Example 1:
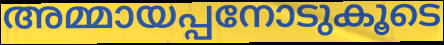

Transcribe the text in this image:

അമ്മായപ്പനോടുകൂടെ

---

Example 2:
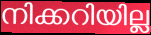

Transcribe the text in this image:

നിക്കറിയില്ല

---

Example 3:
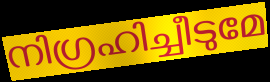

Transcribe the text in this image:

നിഗ്രഹിച്ചീടുമേ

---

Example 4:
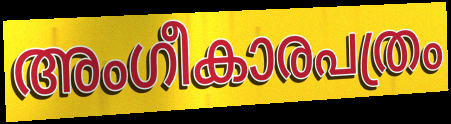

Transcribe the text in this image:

അംഗീകാരപത്രം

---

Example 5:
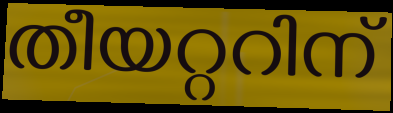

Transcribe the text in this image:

തീയറ്ററിന്